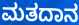
ಮತದಾನ